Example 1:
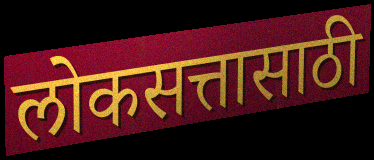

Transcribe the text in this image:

लोकसत्तासाठी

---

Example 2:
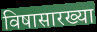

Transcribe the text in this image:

विषासारख्या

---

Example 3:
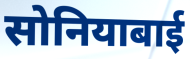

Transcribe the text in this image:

सोनियाबाई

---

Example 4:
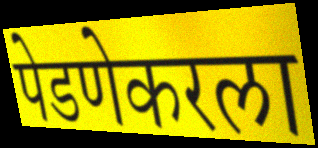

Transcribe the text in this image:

पेडणेकरला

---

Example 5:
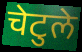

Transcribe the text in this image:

चेटुले